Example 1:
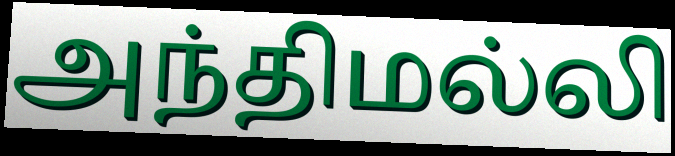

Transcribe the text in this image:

அந்திமல்லி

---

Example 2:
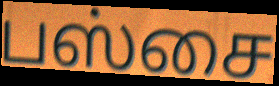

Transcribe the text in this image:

பஸ்சை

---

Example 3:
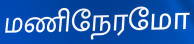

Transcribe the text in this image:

மணிநேரமோ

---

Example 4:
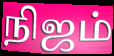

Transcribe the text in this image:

நிஜம்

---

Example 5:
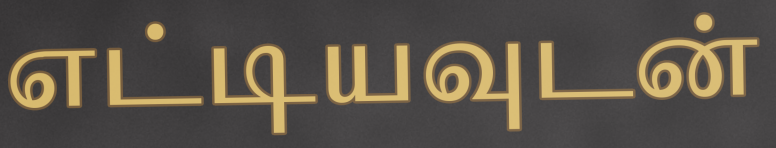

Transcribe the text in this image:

எட்டியவுடன்